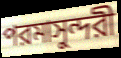
পরমাসুন্দরী